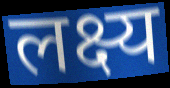
लक्ष्य